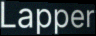
Lapper